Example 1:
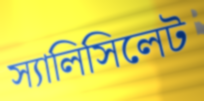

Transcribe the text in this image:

স্যালিসিলেট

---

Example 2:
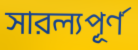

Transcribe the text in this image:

সারল্যপূর্ণ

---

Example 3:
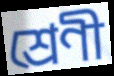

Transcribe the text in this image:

শ্রেণী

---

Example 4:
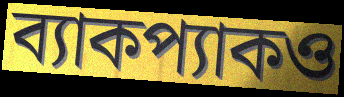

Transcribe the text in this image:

ব্যাকপ্যাকও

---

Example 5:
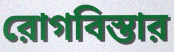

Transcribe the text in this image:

রোগবিস্তার